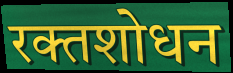
रक्तशोधन